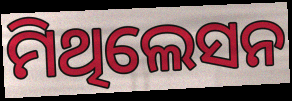
ମିଥିଲେସନ